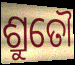
ଶ୍ରୁତୌ